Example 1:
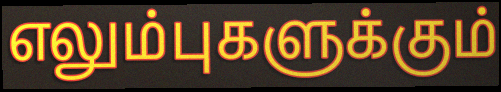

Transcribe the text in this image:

எலும்புகளுக்கும்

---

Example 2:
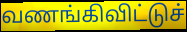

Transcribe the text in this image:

வணங்கிவிட்டுச்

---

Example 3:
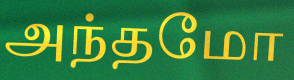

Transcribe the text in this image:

அந்தமோ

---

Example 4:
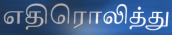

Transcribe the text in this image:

எதிரொலித்து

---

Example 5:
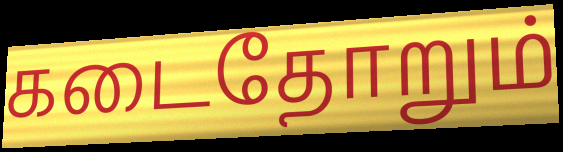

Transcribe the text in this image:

கடைதோறும்